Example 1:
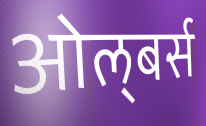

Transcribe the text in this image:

ओल्बर्स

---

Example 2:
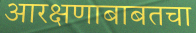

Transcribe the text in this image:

आरक्षणाबाबतचा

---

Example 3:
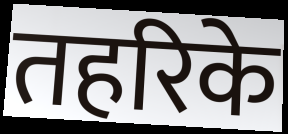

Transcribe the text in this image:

तहरिके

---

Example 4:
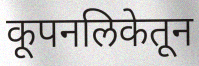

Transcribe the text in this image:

कूपनलिकेतून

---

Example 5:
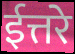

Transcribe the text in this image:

ईत्तरे